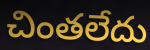
చింతలేదు